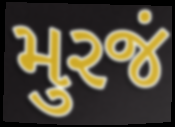
મુરજં